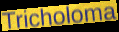
Tricholoma